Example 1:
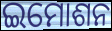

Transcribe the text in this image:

ଇମୋଶନ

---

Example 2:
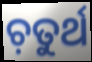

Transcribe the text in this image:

ଚ଼ତୁର୍ଥ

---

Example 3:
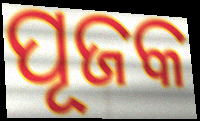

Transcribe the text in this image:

ପୂଜକ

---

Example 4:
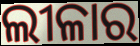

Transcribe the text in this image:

ଲୀଳାର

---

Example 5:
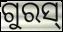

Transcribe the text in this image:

ଗୁରସ୍